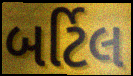
બર્ટિલ